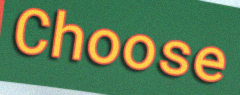
Choose